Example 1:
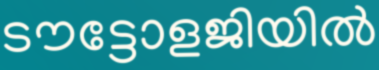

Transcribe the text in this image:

ടൗട്ടോളജിയിൽ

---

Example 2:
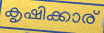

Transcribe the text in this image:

കൃഷിക്കാര്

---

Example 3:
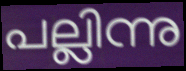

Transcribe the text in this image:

പല്ലിന്നു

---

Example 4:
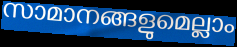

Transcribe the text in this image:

സാമാനങ്ങളുമെല്ലാം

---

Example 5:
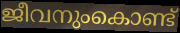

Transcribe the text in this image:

ജീവനുംകൊണ്ട്